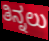
ತಿನ್ನಲು